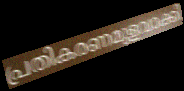
പ്രതികരണമുളവാക്കി